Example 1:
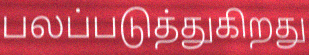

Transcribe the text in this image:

பலப்படுத்துகிறது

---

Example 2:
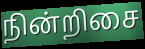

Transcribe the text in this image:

நின்றிசை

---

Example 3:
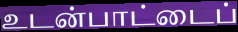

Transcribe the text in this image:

உடன்பாட்டைப்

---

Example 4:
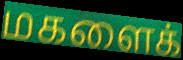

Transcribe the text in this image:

மகளைக்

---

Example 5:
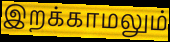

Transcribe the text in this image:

இறக்காமலும்